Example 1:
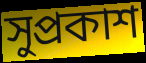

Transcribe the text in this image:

সুপ্রকাশ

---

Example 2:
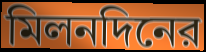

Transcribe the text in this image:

মিলনদিনের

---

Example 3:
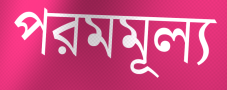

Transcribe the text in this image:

পরমমূল্য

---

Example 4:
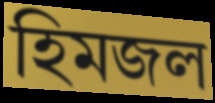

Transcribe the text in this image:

হিমজল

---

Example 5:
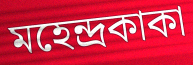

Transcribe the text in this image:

মহেন্দ্রকাকা